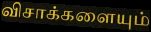
விசாக்களையும்